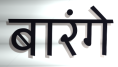
बारंगे